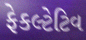
ફેકલ્ટેટિવ